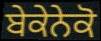
ਬੇਕੇਨੇਕੋ